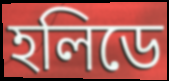
হলিডে